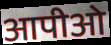
आपीओ